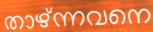
താഴ്ന്നവനെ